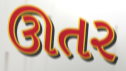
ઊતર